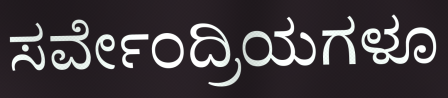
ಸರ್ವೇಂದ್ರಿಯಗಳೂ